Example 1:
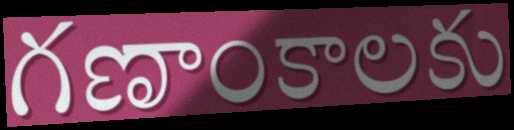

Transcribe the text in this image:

గణాంకాలకు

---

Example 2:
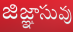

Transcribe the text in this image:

జిజ్ఞాసువు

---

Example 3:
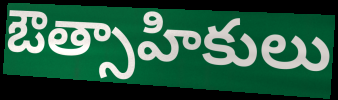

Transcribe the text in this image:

ఔత్సాహికులు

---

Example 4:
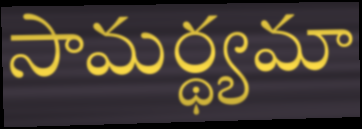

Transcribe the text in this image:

సామర్థ్యమా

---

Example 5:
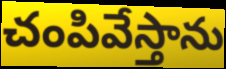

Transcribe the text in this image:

చంపివేస్తాను